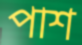
পাশ